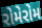
રોમેરોમ